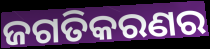
ଜଗତିକରଣର